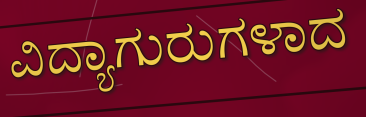
ವಿದ್ಯಾಗುರುಗಳಾದ